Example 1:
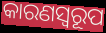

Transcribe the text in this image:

କାରଣସ୍ୱରୂପ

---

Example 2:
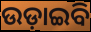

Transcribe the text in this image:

ଉଡ଼ାଇବି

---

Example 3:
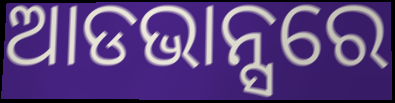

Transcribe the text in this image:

ଆଡଭାନ୍ସରେ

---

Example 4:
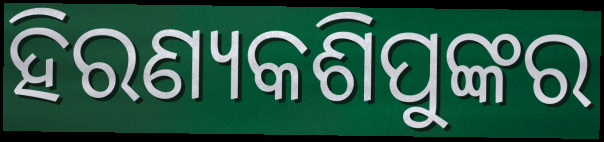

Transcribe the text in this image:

ହିରଣ୍ୟକଶିପୁଙ୍କର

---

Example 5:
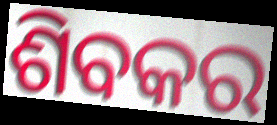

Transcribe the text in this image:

ଶିବକର